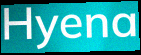
Hyena